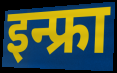
इन्फ्रा